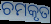
ଚମକୃତ